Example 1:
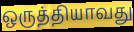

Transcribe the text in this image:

ஒருத்தியாவது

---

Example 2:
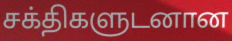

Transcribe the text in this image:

சக்திகளுடனான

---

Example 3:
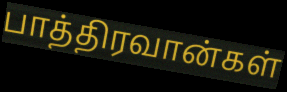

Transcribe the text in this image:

பாத்திரவான்கள்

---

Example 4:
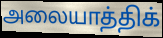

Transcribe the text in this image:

அலையாத்திக்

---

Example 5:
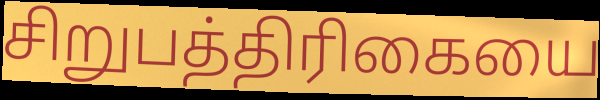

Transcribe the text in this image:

சிறுபத்திரிகையை